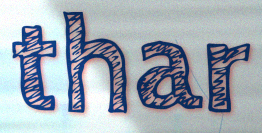
thar